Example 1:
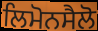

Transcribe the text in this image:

ਲਿਮੋਨਸੈਲੋ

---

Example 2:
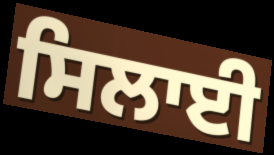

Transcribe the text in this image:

ਸਿਲਾਈ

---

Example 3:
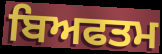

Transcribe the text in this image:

ਬਿਅਫਤਮ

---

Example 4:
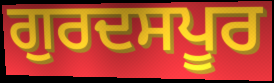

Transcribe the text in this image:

ਗੁਰਦਸਪੂਰ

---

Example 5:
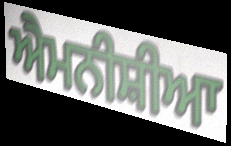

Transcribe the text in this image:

ਐਮਨੀਸ਼ੀਆ